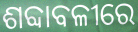
ଶବ୍ଦାବଳୀରେ